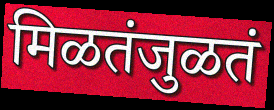
मिळतंजुळतं